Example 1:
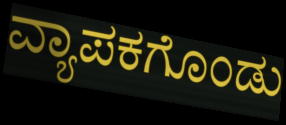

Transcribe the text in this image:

ವ್ಯಾಪಕಗೊಂಡು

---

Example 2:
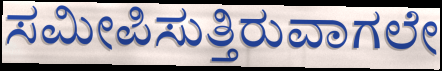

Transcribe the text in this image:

ಸಮೀಪಿಸುತ್ತಿರುವಾಗಲೇ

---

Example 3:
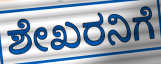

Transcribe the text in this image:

ಶೇಖರನಿಗೆ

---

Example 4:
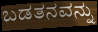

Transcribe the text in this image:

ಬಡತನವನ್ನು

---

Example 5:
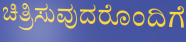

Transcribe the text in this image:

ಚಿತ್ರಿಸುವುದರೊಂದಿಗೆ